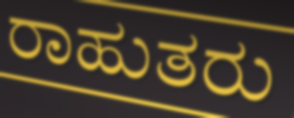
ರಾಹುತರು